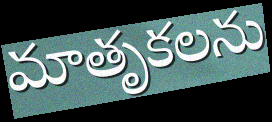
మాతృకలను